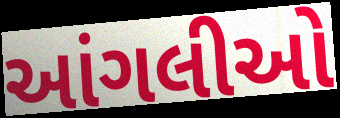
આંગલીઓ